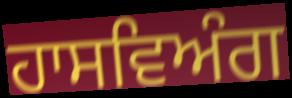
ਹਾਸਵਿਅੰਗ